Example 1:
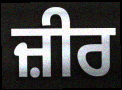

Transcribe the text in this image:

ਜ਼ੀਰ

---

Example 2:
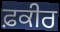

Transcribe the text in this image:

ਫ਼ਕੀਰ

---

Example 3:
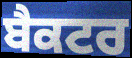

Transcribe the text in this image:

ਬੈਕਟਰ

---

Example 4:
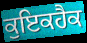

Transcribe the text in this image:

ਕੁਇਕਹੈਕ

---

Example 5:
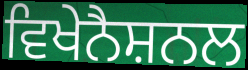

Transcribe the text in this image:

ਵਿਖੇਨੈਸ਼ਨਲ